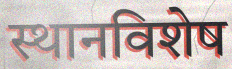
स्थानविशेष